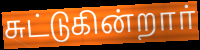
சுட்டுகின்றார்